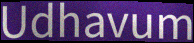
Udhavum